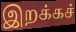
இறக்கச்